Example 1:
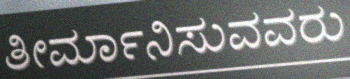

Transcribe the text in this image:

ತೀರ್ಮಾನಿಸುವವರು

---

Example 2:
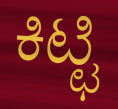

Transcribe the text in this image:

ಕಿಟ್ಟಿ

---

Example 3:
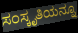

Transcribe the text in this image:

ಸಂಸ್ಕೃತಿಯನ್ನೂ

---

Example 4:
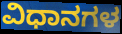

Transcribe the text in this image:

ವಿಧಾನಗಳ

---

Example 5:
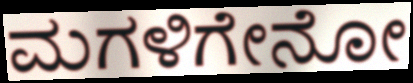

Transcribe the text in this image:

ಮಗಳಿಗೇನೋ